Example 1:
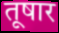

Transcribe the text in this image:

तूषार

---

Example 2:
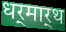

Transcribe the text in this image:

धर्मार्थ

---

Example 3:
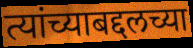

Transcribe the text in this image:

त्यांच्याबद्दलच्या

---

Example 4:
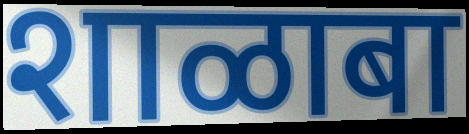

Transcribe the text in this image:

शाळाबा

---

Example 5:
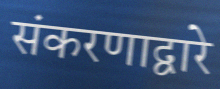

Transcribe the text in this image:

संकरणाद्वारे